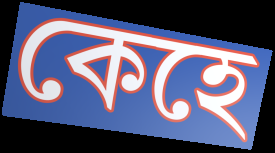
কেহে